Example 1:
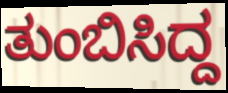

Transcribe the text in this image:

ತುಂಬಿಸಿದ್ದ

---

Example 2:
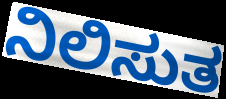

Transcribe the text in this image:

ನಿಲಿಸುತ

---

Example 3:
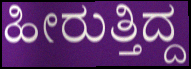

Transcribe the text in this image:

ಹೀರುತ್ತಿದ್ದ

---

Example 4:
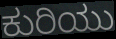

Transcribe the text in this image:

ಕುರಿಯು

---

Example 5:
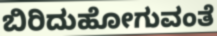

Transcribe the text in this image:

ಬಿರಿದುಹೋಗುವಂತೆ